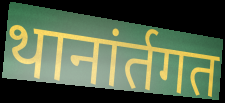
थानांर्तगत